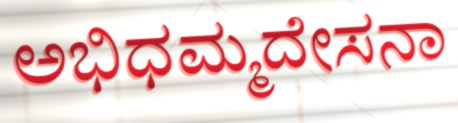
ಅಭಿಧಮ್ಮದೇಸನಾ